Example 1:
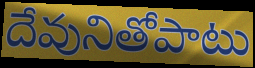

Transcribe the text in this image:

దేవునితోపాటు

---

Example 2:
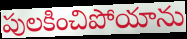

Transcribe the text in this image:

పులకించిపోయాను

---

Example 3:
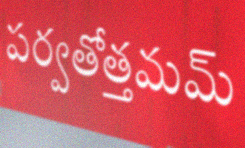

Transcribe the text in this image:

పర్వతోత్తమమ్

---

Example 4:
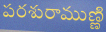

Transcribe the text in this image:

పరశురాముణ్ణి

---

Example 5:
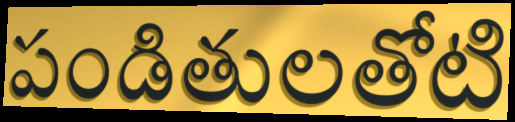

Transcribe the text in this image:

పండితులతోటి